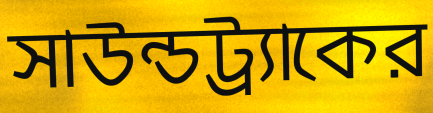
সাউন্ডট্র্যাকের